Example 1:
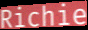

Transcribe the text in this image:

Richie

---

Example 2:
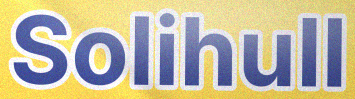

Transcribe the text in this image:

Solihull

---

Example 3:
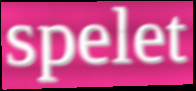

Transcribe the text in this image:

spelet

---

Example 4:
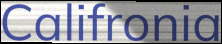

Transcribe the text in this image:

Califronia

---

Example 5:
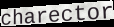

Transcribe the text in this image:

charector